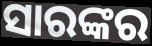
ସାରଙ୍କର